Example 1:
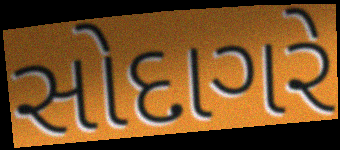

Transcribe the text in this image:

સોદાગરે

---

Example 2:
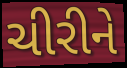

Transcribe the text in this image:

ચીરીને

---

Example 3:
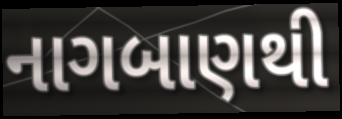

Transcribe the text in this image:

નાગબાણથી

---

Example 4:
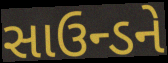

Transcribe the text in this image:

સાઉન્ડને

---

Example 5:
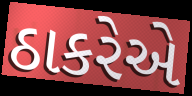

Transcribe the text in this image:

ઠાકરેએ